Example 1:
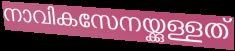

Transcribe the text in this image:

നാവികസേനയ്ക്കുള്ളത്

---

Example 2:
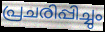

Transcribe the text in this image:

പ്രചരിപ്പിച്ചും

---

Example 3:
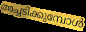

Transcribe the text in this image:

അച്ചടിക്കുമ്പോൾ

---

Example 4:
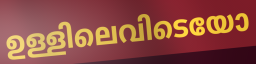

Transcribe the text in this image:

ഉള്ളിലെവിടെയോ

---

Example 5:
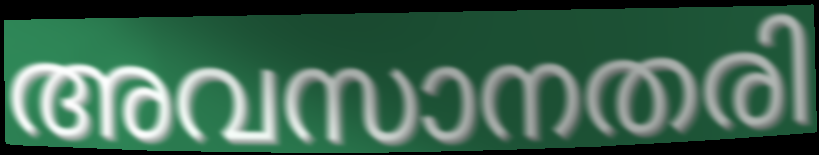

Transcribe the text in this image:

അവസാനതരി